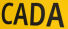
CADA